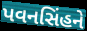
પવનસિંહને